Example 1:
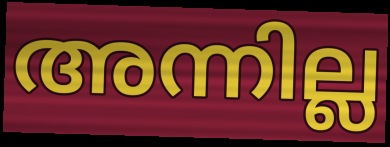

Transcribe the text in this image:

അന്നില്ല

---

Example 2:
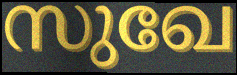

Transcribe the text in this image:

സുഖേ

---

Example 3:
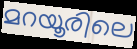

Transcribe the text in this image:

മറയൂരിലെ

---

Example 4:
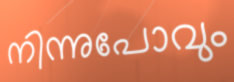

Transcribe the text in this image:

നിന്നുപോവും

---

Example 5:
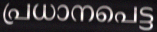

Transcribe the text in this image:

പ്രധാനപെട്ട